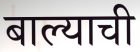
बाल्याची